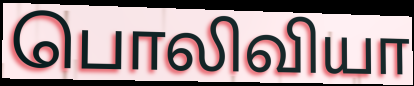
பொலிவியா